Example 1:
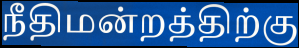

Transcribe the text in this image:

நீதிமன்றத்திற்கு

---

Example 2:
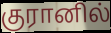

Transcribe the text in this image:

குரானில்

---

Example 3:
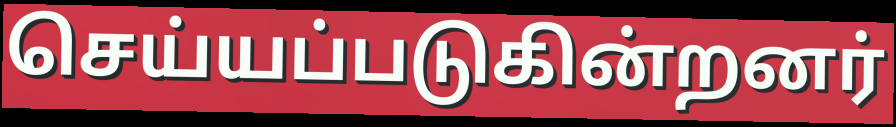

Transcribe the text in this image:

செய்யப்படுகின்றனர்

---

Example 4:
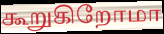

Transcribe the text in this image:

கூறுகிறோமா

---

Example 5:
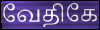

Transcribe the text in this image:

வேதிகே